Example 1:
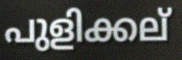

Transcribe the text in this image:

പുളിക്കല്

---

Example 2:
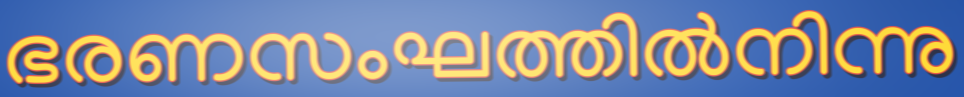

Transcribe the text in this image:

ഭരണസംഘത്തിൽനിന്നു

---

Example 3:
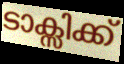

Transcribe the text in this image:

ടാക്സിക്ക്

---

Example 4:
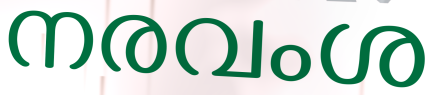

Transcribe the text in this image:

നരവംശ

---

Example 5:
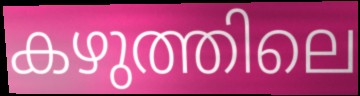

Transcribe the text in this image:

കഴുത്തിലെ